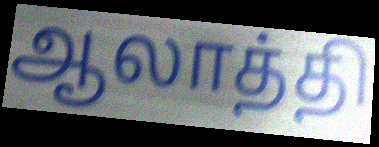
ஆலாத்தி